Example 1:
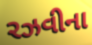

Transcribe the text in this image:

રઝવીના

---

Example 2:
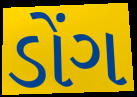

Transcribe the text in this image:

ડોંગ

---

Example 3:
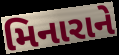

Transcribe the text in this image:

મિનારાને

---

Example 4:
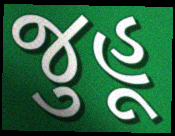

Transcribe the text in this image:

જુહૂ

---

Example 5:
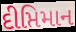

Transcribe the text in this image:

દીપ્તિમાન